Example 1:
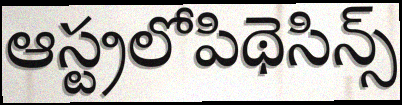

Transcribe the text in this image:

ఆస్ట్రలోపిథెసిన్స్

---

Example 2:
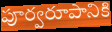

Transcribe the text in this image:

పూర్వరూపానికి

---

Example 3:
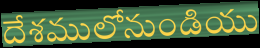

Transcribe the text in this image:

దేశములోనుండియు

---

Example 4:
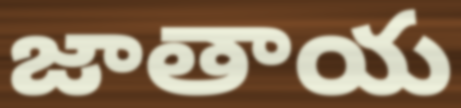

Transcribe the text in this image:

జాతాయ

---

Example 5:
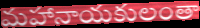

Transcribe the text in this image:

మహానాయకులంతా